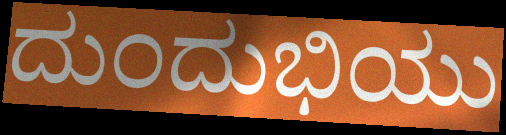
ದುಂದುಭಿಯು